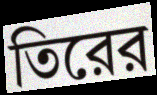
তিরের